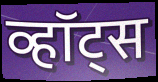
व्हॉट्स